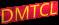
DMTCL